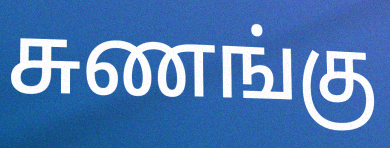
சுணங்கு